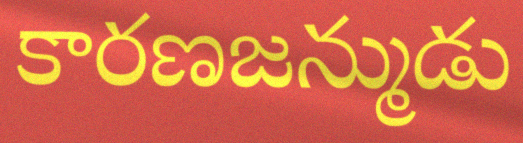
కారణజన్ముడు